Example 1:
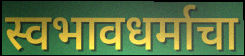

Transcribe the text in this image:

स्वभावधर्माचा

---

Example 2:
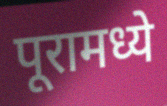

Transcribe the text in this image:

पूरामध्ये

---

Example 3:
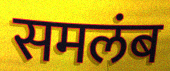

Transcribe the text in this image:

समलंब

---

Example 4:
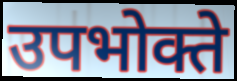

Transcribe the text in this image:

उपभोक्ते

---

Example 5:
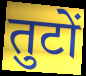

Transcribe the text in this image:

तुटों